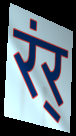
रंर्